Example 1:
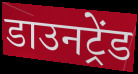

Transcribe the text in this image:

डाउनट्रेंड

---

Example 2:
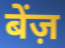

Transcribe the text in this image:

बेंज़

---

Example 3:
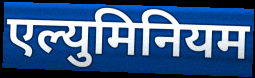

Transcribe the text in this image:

एल्युमिनियम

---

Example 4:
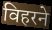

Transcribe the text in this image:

विहरने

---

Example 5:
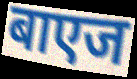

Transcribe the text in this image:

बाएज